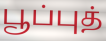
பூப்புத்